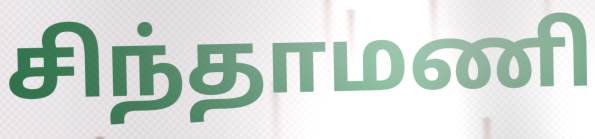
சிந்தாமணி